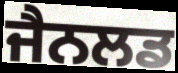
ਜੈਨਲਡ